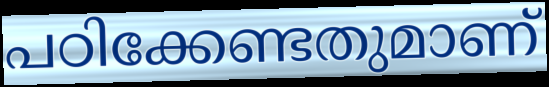
പഠിക്കേണ്ടതുമാണ്